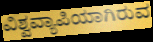
ವಿಶ್ವವ್ಯಾಪಿಯಾಗಿರುವ